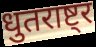
धुतराष्ट्र